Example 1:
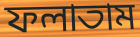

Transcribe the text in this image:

ফলাতাম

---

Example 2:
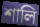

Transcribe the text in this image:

শালি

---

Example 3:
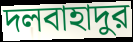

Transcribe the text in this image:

দলবাহাদুর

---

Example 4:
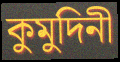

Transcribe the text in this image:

কুমুদিনী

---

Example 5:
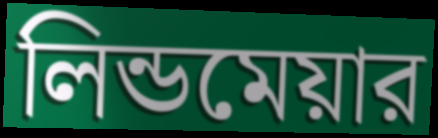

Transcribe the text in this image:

লিন্ডমেয়ার